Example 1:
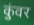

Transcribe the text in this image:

कुंवर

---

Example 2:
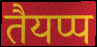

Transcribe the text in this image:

तैयप्प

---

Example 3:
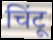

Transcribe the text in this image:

चिंटू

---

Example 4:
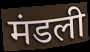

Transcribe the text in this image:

मंडली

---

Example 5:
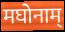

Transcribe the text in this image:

मघोनाम्